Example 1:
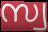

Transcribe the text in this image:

സ്വ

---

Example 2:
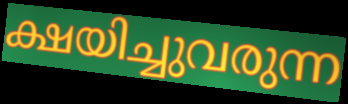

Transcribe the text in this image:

ക്ഷയിച്ചുവരുന്ന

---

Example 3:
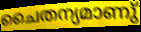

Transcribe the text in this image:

ചൈതന്യമാണു്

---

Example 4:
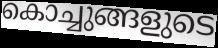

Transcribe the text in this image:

കൊച്ചുങ്ങളുടെ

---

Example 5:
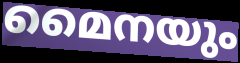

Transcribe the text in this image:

മൈനയും